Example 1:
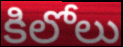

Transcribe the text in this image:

కిలోలు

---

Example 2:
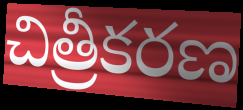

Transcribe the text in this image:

చిత్రీకరణ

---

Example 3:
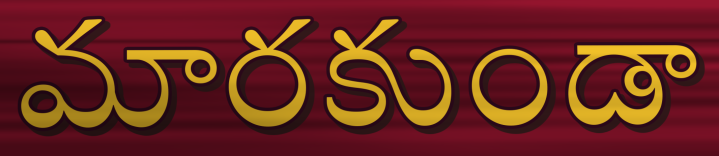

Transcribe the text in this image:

మారకుండా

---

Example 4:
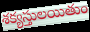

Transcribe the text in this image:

శక్యస్తులయితుం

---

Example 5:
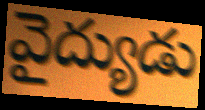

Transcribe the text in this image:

వైద్యుడు